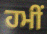
ਹਮੀਂ